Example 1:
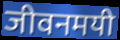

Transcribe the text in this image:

जीवनमयी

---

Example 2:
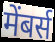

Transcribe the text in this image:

मेंबर्स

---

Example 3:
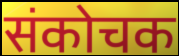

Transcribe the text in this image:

संकोचक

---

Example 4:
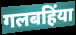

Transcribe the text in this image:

गलबहिंया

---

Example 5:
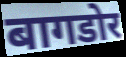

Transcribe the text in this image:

बागडोर